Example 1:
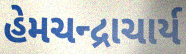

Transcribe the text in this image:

હેમચન્દ્રાચાર્ય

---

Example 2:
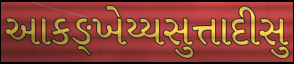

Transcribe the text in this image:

આકઙ્ખેય્યસુત્તાદીસુ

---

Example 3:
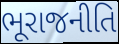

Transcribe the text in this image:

ભૂરાજનીતિ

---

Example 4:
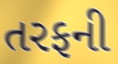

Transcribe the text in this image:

તરફની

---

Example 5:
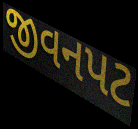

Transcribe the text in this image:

જીવનપટ